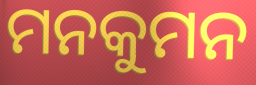
ମନକୁମନ